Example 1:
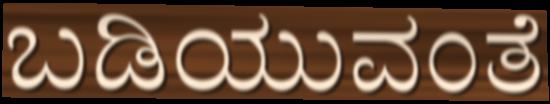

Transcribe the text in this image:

ಬಡಿಯುವಂತೆ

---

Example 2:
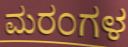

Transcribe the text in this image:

ಮರಂಗಳ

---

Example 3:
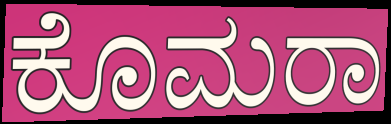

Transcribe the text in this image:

ಕೊಮರಾ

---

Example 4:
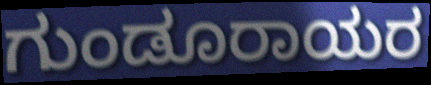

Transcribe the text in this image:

ಗುಂಡೂರಾಯರ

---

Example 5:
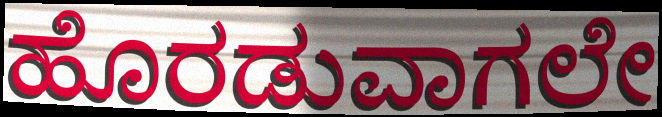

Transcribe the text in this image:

ಹೊರಡುವಾಗಲೇ